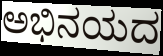
ಅಭಿನಯದ